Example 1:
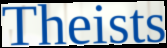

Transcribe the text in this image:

Theists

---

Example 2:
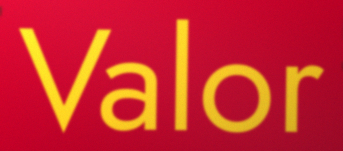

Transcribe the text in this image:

Valor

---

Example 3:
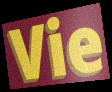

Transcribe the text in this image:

Vie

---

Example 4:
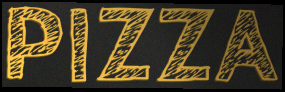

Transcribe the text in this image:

PIZZA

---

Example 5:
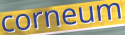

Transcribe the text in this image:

corneum